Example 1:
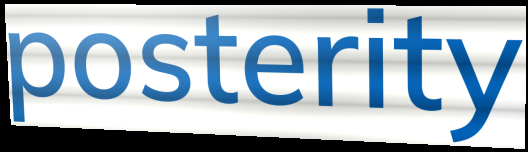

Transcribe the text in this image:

posterity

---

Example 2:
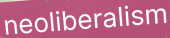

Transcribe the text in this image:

neoliberalism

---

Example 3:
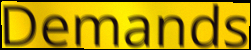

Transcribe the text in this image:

Demands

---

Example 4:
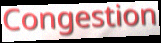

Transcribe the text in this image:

Congestion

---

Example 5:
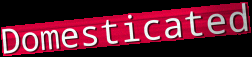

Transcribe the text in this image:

Domesticated